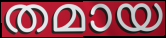
തമായ